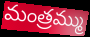
మంత్రమ్ము